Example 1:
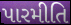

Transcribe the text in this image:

પારમીતિ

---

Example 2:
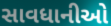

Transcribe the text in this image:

સાવધાનીઓ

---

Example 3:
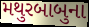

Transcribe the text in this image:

મથુરબાબુના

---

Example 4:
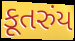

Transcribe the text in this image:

કૂતરુંય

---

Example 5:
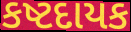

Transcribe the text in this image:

કષ્ટદાયક